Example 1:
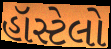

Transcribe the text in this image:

હૉસ્ટેલો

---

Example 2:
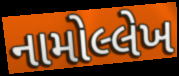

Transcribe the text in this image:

નામોલ્લેખ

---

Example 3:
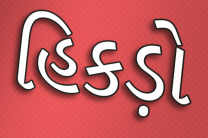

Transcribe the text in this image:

હિકડ઼ો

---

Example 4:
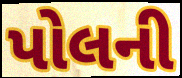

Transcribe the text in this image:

પોલની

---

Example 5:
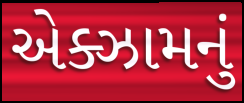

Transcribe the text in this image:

એક્ઝામનું